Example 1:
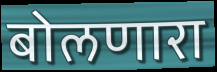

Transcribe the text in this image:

बोलणारा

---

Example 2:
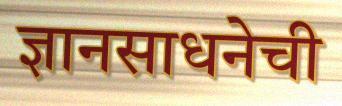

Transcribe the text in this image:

ज्ञानसाधनेची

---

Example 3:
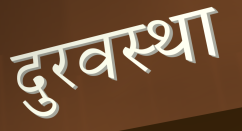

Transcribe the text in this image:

दुरवस्था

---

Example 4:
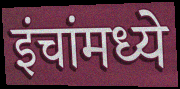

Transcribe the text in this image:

इंचांमध्ये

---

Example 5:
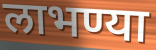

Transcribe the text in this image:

लाभण्या